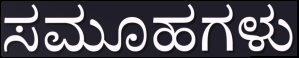
ಸಮೂಹಗಳು